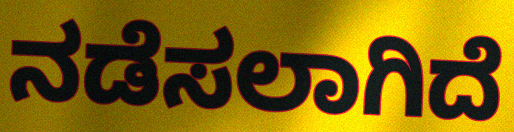
ನಡೆಸಲಾಗಿದೆ